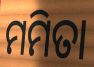
ମମିତା